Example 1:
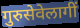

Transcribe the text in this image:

गुरुसेवेलागीं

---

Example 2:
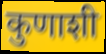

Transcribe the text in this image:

कुणाशी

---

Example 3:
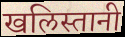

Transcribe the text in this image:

खलिस्तानी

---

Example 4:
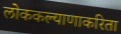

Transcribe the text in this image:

लोककल्याणाकरिता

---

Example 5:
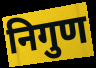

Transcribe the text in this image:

निगुण